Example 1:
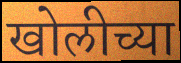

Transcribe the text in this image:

खोलीच्या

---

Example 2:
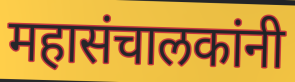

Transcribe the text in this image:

महासंचालकांनी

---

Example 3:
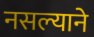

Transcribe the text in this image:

नसल्‍याने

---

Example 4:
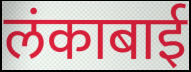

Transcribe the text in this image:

लंकाबाई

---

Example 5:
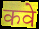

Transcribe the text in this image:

कवे